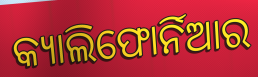
କ୍ୟାଲିଫୋର୍ନିଆର